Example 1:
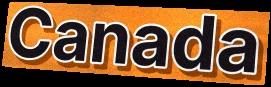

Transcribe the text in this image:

Canada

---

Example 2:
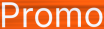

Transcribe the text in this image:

Promo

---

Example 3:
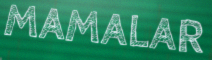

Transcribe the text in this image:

MAMALAR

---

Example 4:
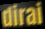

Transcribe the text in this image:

dirai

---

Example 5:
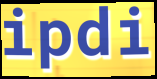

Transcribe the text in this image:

ipdi